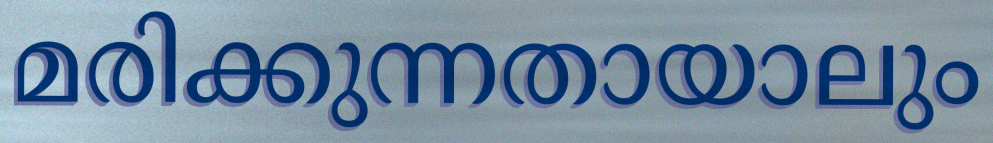
മരിക്കുന്നതായാലും